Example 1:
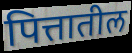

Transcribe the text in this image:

पित्तातील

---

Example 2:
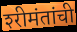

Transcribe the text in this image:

श्रीमंतांची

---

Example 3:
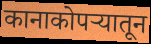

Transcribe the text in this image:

कानाकोपर्‍यातून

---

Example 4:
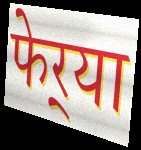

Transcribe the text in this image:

फेर्या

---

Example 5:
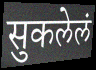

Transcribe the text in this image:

सुकलेलं